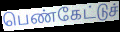
பெண்கேட்டுச்